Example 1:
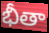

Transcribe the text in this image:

భీతా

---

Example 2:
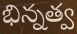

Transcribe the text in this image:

భిన్నత్వ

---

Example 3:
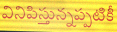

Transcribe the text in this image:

వినిపిస్తున్నప్పటికీ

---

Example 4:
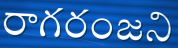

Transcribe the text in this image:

రాగరంజని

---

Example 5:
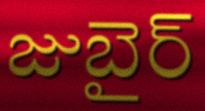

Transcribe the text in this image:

జుబైర్